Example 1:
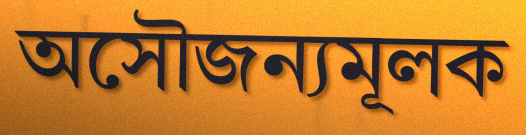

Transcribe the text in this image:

অসৌজন্যমূলক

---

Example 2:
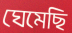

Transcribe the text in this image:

ঘেমেছি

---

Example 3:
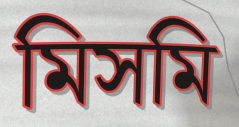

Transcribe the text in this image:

মিসমি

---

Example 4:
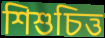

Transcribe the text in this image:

শিশুচিত্ত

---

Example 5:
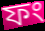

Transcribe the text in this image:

ফং